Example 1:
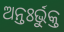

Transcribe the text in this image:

ଅନ୍ତଃର୍ଭୁକ୍ତ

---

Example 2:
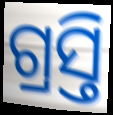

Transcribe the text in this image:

ଗ୍ରସ୍ତି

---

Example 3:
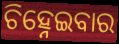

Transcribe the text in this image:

ଚିହ୍ନେଇବାର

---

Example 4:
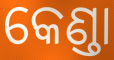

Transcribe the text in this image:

କେଣ୍ଡା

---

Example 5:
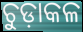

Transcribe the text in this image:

ଚୁଡ଼ାକଳ